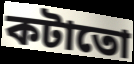
কটাতো